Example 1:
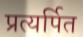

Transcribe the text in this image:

प्रत्यर्पित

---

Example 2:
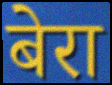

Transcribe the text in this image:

बेरा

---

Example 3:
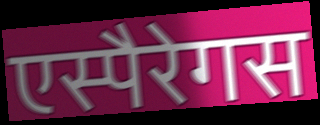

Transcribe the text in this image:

एस्पैरेगस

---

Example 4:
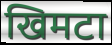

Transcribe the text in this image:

खिमटा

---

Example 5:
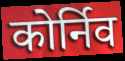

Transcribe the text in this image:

कोर्निव